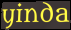
yinda